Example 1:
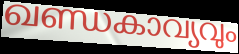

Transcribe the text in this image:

ഖണ്ഡകാവ്യവും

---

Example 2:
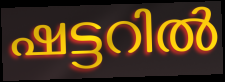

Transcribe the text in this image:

ഷട്ടറിൽ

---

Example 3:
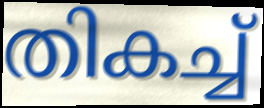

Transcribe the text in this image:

തികച്ച്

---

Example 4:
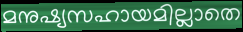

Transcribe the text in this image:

മനുഷ്യസഹായമില്ലാതെ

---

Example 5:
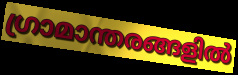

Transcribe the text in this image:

ഗ്രാമാന്തരങ്ങളിൽ